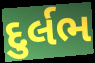
દુર્લભ